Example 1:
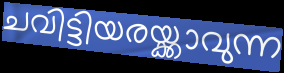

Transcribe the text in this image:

ചവിട്ടിയരയ്ക്കാവുന്ന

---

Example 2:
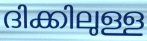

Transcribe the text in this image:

ദിക്കിലുള്ള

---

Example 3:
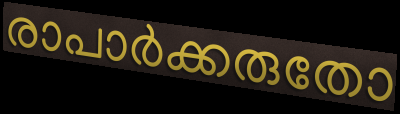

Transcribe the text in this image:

രാപാർക്കരുതോ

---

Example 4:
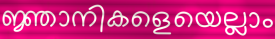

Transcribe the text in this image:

ജ്ഞാനികളെയെല്ലാം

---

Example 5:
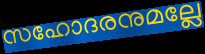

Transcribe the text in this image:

സഹോദരനുമല്ലേ